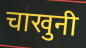
चाखुनी